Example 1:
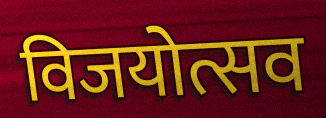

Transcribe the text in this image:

विजयोत्सव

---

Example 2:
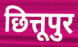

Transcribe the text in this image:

छित्तूपुर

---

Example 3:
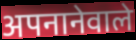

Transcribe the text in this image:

अपनानेवाले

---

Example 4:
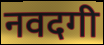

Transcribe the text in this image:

नवदगी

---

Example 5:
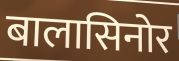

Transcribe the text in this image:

बालासिनोर